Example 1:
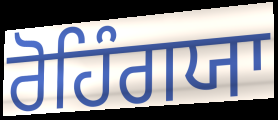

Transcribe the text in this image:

ਰੋਹਿੰਗਯਾ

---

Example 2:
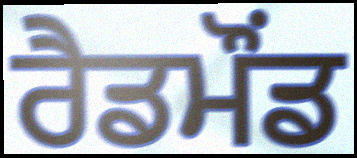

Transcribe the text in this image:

ਰੈਡਮੌਂਡ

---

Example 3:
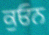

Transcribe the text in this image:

ਕੁਓਨ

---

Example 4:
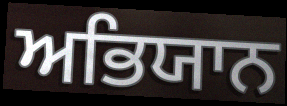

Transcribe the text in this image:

ਅਭਿਯਾਨ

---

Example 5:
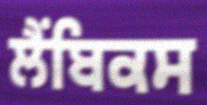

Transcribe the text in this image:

ਲੈਂਬਿਕਸ